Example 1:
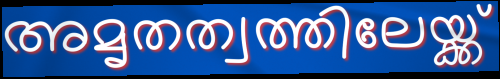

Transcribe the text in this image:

അമൃതത്വത്തിലേയ്ക്ക്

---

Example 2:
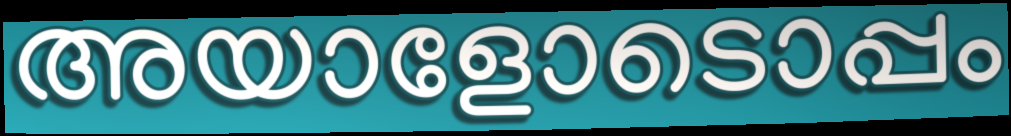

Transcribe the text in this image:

അയാളോടൊപ്പം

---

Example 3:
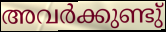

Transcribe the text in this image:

അവർക്കുണ്ടു്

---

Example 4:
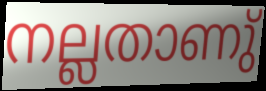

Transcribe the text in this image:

നല്ലതാണു്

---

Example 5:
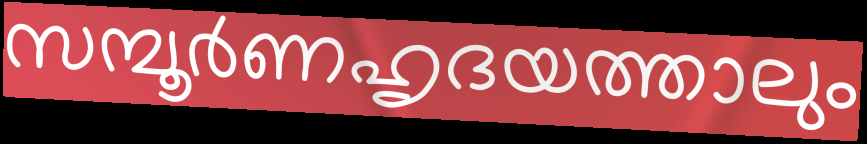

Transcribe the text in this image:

സമ്പൂർണഹൃദയത്താലും